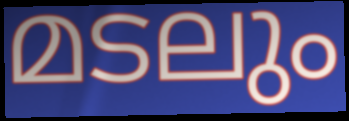
മടലും